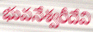
భువనేశ్వరీదేవి